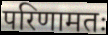
परिणामतः